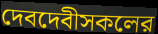
দেবদেবীসকলের